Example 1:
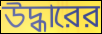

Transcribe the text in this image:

উদ্ধারের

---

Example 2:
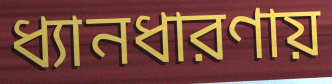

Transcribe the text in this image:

ধ্যানধারণায়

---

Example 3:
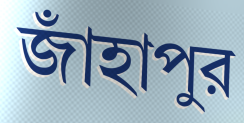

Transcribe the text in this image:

জাঁহাপুর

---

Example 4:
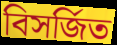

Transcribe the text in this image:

বিসর্জিত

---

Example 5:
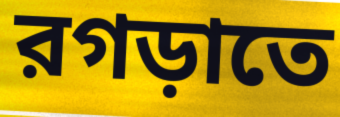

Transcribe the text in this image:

রগড়াতে